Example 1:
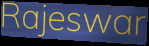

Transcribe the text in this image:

Rajeswar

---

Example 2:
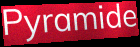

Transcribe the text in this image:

Pyramide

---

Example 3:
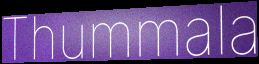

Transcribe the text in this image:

Thummala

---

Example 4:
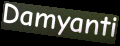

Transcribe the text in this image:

Damyanti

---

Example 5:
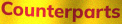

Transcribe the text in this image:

Counterparts